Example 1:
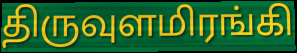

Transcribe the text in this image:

திருவுளமிரங்கி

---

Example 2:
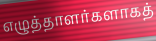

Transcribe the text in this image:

எழுத்தாளர்களாகத்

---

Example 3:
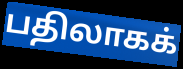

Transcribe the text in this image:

பதிலாகக்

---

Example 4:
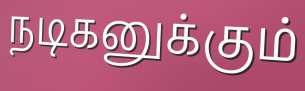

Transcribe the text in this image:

நடிகனுக்கும்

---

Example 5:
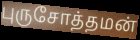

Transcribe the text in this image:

புருசோத்தமன்